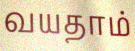
வயதாம்